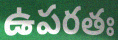
ఉపరతః